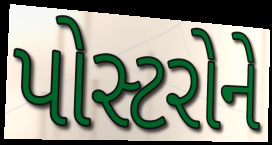
પોસ્ટરોને